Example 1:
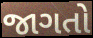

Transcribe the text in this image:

જાગતો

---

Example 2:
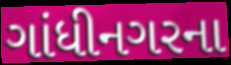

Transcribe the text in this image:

ગાંધીનગરના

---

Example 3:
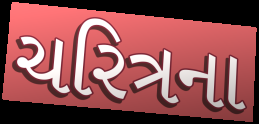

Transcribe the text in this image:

ચરિત્રના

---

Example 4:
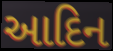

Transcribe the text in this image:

આદિન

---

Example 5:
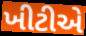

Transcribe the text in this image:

ખીટીએ